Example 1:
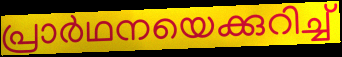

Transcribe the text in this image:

പ്രാർഥനയെക്കുറിച്ച്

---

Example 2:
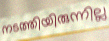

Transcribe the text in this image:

നടത്തിയിരുന്നില്ല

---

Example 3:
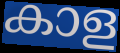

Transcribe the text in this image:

കാള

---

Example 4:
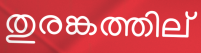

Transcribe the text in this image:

തുരങ്കത്തില്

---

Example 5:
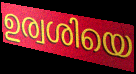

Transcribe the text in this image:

ഉര്വശിയെ